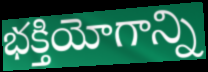
భక్తియోగాన్ని